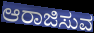
ಆರಾಜಿಸುವ